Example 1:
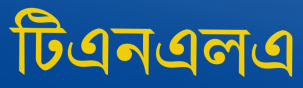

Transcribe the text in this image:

টিএনএলএ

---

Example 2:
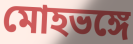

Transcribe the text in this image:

মোহভঙ্গে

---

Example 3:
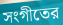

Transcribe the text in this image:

সংগীতের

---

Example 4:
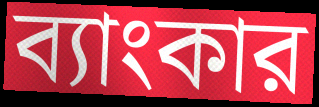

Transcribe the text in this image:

ব্যাংকার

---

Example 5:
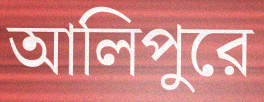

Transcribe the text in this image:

আলিপুরে